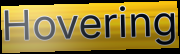
Hovering